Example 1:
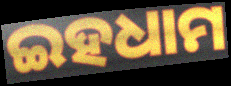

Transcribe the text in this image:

ଇହଧାମ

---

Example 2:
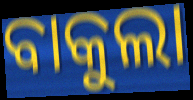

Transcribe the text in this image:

ବାକୁଲା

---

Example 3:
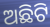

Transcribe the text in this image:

ଅଛିଟି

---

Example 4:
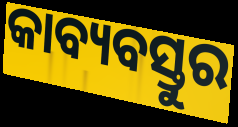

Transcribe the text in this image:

କାବ୍ୟବସ୍ତୁର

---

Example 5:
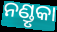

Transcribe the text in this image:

ନଣ୍ଡୃକା